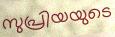
സുപ്രിയയുടെ